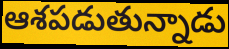
ఆశపడుతున్నాడు